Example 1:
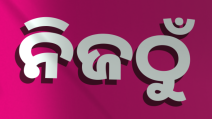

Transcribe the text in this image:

ନିଜଠୁଁ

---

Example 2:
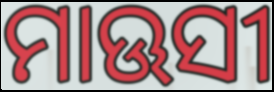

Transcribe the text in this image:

ମାଊସୀ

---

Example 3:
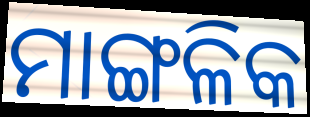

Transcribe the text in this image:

ମାଙ୍ଗଳିକ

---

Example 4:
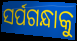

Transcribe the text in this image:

ସର୍ପଗନ୍ଧାକୁ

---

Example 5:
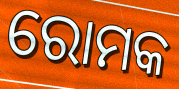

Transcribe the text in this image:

ରୋମକ